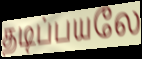
தடிப்பயலே